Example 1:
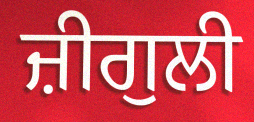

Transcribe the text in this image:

ਜ਼ੀਗੁਲੀ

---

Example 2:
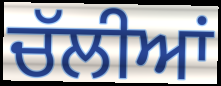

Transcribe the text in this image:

ਚੱਲੀਆਂ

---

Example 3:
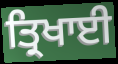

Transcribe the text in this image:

ਤ੍ਰਿਖਾਈ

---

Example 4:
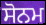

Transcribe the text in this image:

ਸੋਨਮ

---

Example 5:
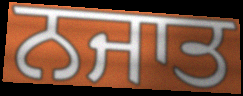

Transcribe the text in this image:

ਨਜਾਤ